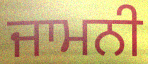
ਜਾਮਨੀ